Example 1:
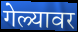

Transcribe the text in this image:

गेल्यावर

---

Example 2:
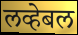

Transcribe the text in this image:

लव्हेबल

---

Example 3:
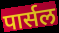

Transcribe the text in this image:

पार्सल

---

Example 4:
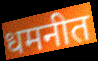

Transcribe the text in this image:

धमनीत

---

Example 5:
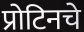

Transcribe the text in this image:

प्रोटिनचे